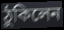
ঠুকিলেন